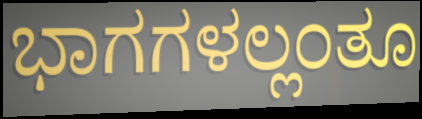
ಭಾಗಗಳಲ್ಲಂತೂ